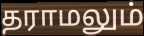
தராமலும்